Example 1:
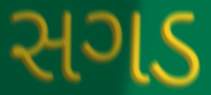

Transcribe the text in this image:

સગડ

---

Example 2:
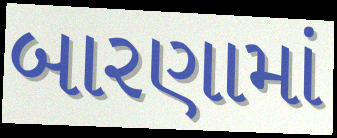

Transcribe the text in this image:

બારણામાં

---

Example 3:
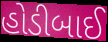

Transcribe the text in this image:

હોડીબાઈ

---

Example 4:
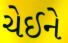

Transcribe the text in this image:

ચેઈને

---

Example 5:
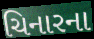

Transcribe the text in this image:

ચિનારના